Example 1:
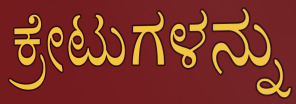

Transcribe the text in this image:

ಕ್ರೇಟುಗಳನ್ನು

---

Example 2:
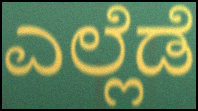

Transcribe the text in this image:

ಎಲ್ಲೆಡೆ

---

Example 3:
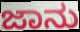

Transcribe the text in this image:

ಜಾನು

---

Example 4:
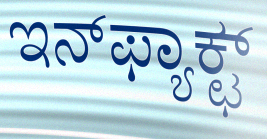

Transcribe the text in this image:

ಇನ್‌ಫ್ಯಾಕ್ಟ್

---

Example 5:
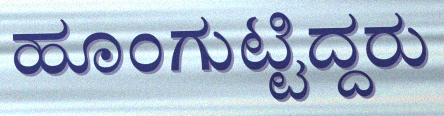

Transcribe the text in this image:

ಹೂಂಗುಟ್ಟಿದ್ದರು